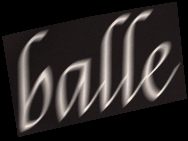
balle